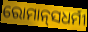
ରୋମାନ୍‍ସଧର୍ମୀ